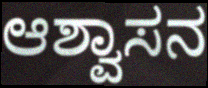
ಆಶ್ವಾಸನ